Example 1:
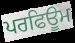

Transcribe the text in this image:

ਪਰਫਿਊਮ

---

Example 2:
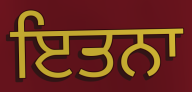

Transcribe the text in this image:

ਇਤਨਾ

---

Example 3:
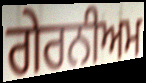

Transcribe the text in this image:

ਗੇਰਨੀਅਮ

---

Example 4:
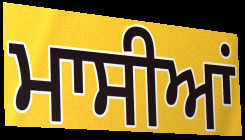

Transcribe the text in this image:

ਮਾਸੀਆਂ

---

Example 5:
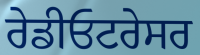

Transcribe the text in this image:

ਰੇਡੀਓਟਰੇਸਰ